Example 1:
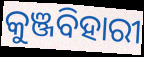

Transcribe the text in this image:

କୁଞ୍ଜବିହାରୀ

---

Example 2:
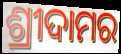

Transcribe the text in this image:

ଶ୍ରୀଦାମର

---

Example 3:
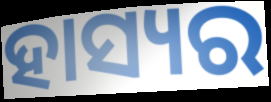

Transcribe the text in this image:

ହାସ୍ୟର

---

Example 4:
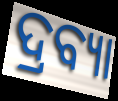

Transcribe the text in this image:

ଦ୍ରବ୍ୟା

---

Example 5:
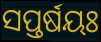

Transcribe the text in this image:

ସପ୍ତର୍ଷୟଃ